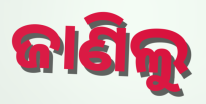
ଜାଣିଲୁ